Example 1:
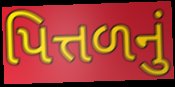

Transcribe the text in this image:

પિત્તળનું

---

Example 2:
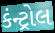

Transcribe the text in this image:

કંન્ટ્રોલ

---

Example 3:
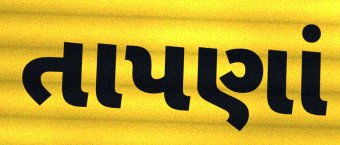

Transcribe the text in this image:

તાપણાં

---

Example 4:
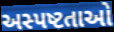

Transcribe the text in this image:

અસ્પષ્ટતાઓ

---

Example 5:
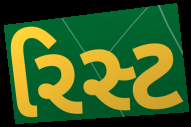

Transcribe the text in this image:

રિસ્ટ